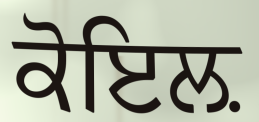
ਕੋਇਲ਼